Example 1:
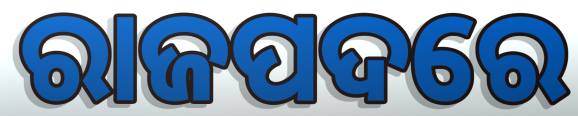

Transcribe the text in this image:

ରାଜପଦରେ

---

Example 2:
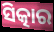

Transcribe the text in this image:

ସିତ୍କାର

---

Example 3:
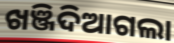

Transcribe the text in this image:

ଖଞ୍ଜିଦିଆଗଲା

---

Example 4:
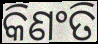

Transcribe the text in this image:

କିଣଂତି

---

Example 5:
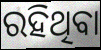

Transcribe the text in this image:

ରହିଥିବା